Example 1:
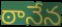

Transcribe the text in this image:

ఠానేన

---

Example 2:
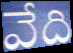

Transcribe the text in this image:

వేది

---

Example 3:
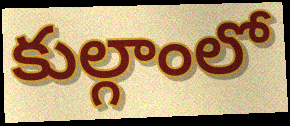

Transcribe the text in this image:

కుల్గాంలో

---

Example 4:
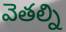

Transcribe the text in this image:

వెతల్ని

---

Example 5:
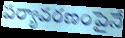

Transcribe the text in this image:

పర్యావరణంపైనే